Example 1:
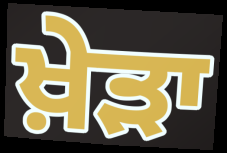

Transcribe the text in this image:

ਖ਼ੇੜਾ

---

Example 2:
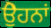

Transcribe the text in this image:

ਉੇਹਨਾਂ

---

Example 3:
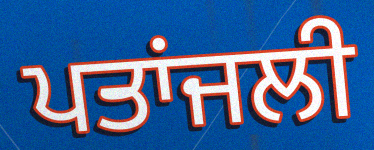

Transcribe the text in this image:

ਪਤਾਂਜਲੀ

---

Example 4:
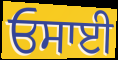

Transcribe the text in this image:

ਓਸਾਈ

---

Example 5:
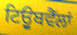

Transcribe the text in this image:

ਟਿਊੁਬਵੈੱਲਾਂ